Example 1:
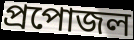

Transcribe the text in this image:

প্রপোজল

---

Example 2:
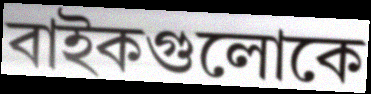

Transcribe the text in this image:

বাইকগুলোকে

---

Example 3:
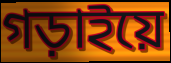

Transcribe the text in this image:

গড়াইয়ে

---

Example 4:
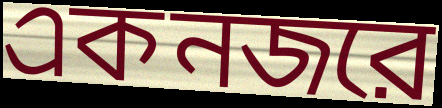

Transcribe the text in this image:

একনজরে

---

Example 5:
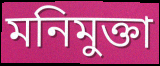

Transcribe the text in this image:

মনিমুক্তা